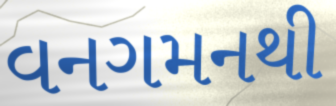
વનગમનથી